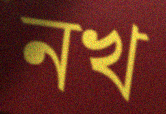
নখ